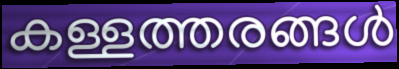
കള്ളത്തരങ്ങൾ